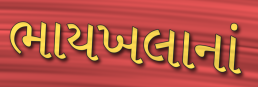
ભાયખલાનાં